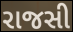
રાજસી